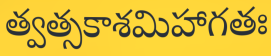
త్వత్సకాశమిహాగతః